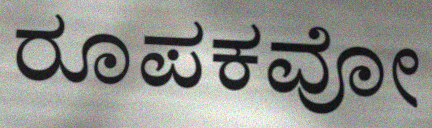
ರೂಪಕವೋ